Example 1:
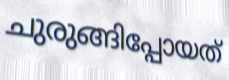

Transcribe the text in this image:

ചുരുങ്ങിപ്പോയത്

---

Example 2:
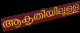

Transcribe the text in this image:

ആകൃതിയിലുള്ള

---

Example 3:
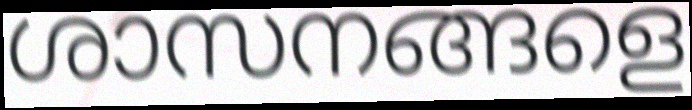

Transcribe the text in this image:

ശാസനങ്ങളെ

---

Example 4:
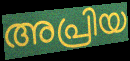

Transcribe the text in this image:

അപ്രിയ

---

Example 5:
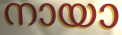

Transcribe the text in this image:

നായാ